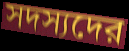
সদস্যদের